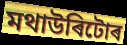
মথাউৰিটোৰ